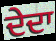
ਦੇਦਾ